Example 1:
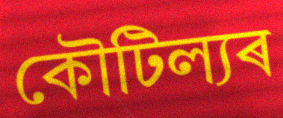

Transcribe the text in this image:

কৌটিল্যৰ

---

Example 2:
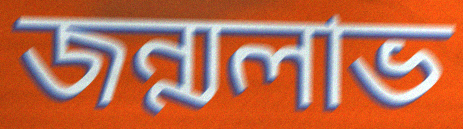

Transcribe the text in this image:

জন্মলাভ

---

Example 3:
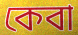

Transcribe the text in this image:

কেবা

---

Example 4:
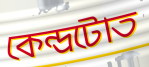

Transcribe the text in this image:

কেন্দ্ৰটোত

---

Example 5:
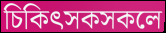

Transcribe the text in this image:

চিকিৎসকসকলে